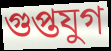
গুপ্তযুগ